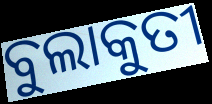
ବୁଲାକୁତୀ